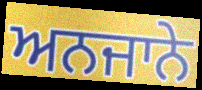
ਅਨਜਾਨੇ